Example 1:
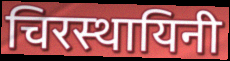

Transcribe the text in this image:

चिरस्थायिनी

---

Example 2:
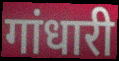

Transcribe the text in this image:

गांधारी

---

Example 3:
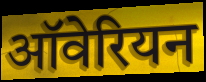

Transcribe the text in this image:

ऑवेरियन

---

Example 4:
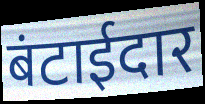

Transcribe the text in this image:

बंटाईदार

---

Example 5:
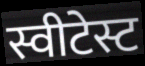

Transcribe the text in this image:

स्वीटेस्ट